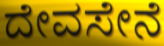
ದೇವಸೇನೆ